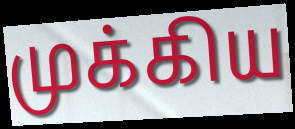
முக்கிய